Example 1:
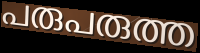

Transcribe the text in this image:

പരുപരുത്ത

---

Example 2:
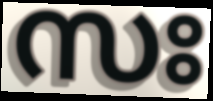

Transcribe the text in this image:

സഃ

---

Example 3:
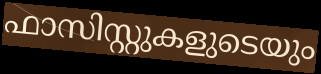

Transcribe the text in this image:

ഫാസിസ്റ്റുകളുടെയും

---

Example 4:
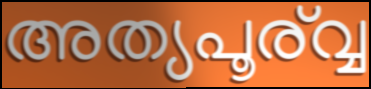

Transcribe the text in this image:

അത്യപൂര്വ്വ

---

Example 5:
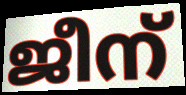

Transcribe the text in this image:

ജീന്